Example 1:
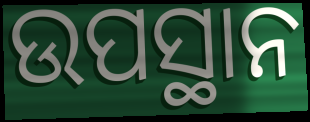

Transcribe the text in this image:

ଉପସ୍ଥାନ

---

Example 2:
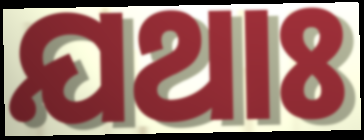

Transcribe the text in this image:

ଯଥାଃ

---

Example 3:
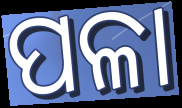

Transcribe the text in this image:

ପଳା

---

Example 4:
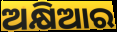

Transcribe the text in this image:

ଅକ୍ଷିଆର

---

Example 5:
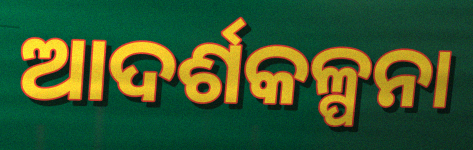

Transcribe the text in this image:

ଆଦର୍ଶକଳ୍ପନା